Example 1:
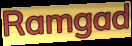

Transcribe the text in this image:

Ramgad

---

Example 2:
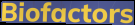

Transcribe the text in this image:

Biofactors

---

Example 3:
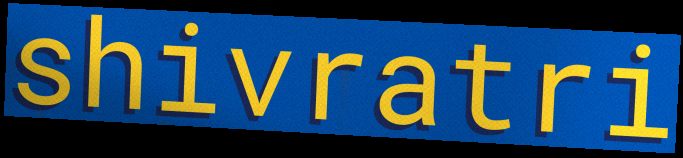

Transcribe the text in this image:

shivratri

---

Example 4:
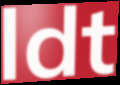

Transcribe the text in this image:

ldt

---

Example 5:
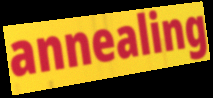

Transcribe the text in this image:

annealing